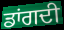
ਡਾਂਗਦੀ